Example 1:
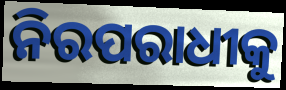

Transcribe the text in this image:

ନିରପରାଧୀକୁ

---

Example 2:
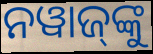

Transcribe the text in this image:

ନୱାଜ୍‍ଙ୍କୁ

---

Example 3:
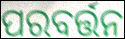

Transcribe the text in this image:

ପରବର୍ତ୍ତନ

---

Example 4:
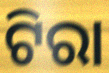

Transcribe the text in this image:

ଟିରା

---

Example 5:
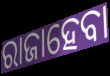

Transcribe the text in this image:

ରାଜାହେବା